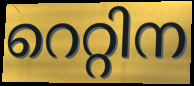
റെറ്റിന